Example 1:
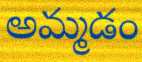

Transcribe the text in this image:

అమ్మడం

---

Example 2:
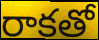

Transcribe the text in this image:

రాకతో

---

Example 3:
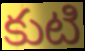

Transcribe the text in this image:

కుటి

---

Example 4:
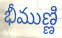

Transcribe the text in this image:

భీముణ్ణి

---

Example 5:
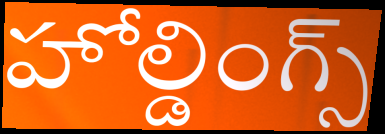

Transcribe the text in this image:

హోల్డింగ్స్